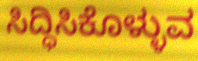
ಸಿದ್ಧಿಸಿಕೊಳ್ಳುವ